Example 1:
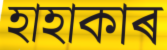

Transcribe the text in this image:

হাহাকাৰ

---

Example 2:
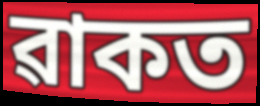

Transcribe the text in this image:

ৱাকত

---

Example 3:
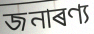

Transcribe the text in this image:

জনাৰণ্য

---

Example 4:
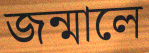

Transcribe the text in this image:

জন্মালে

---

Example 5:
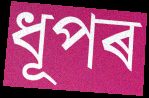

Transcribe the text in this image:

ধূপৰ